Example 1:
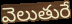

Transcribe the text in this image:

వెలుతురే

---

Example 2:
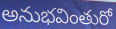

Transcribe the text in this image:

అనుభవింతురో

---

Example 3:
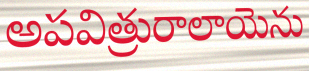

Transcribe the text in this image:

అపవిత్రురాలాయెను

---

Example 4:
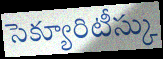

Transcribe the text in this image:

సెక్యూరిటీస్కు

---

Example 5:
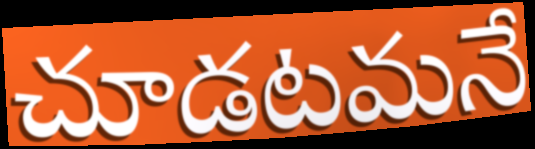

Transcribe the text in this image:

చూడటమనే